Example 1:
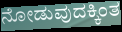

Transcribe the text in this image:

ನೋಡುವುದಕ್ಕಿಂತ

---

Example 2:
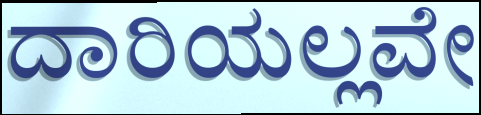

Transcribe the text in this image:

ದಾರಿಯಲ್ಲವೇ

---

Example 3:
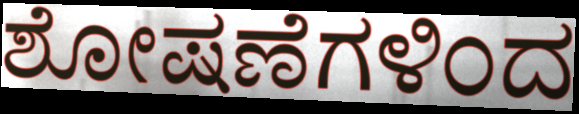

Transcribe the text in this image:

ಶೋಷಣೆಗಳಿಂದ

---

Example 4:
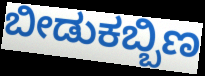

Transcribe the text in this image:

ಬೀಡುಕಬ್ಬಿಣ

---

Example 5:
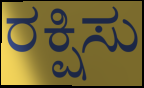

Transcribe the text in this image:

ರಕ್ಷಿಸು